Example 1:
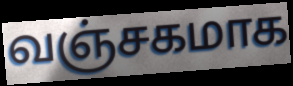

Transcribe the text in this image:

வஞ்சகமாக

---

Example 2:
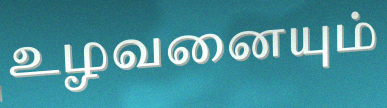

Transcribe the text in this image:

உழவனையும்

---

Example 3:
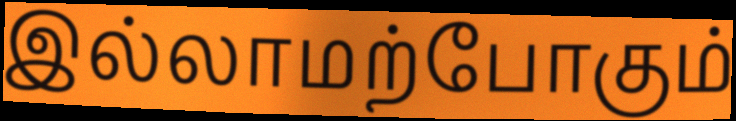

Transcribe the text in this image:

இல்லாமற்போகும்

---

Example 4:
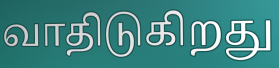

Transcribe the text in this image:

வாதிடுகிறது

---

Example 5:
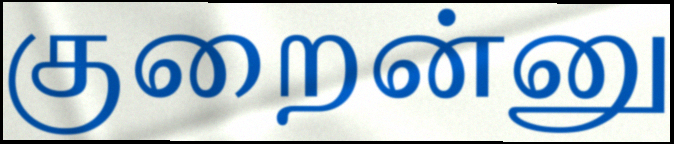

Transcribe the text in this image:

குறைன்னு